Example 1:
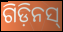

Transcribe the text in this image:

ଗିଡ଼ିନସ୍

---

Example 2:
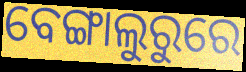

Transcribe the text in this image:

ବେଙ୍ଗାଲୁରୁରେ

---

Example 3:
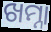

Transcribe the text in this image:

ଖମ୍ନା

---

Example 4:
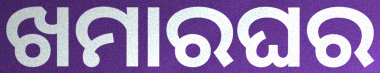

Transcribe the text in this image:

ଖମାରଘର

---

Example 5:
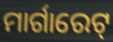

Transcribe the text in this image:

ମାର୍ଗାରେଟ୍